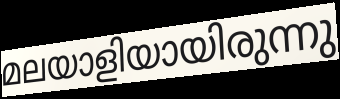
മലയാളിയായിരുന്നു